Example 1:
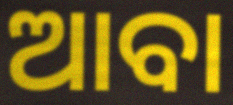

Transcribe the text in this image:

ଆବା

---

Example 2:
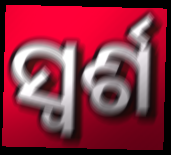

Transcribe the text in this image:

ସ୍ୱର୍ଶ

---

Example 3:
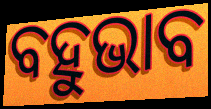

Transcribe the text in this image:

ବହୁଭାବ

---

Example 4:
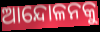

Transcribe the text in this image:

ଆନ୍ଦୋଳନକୁ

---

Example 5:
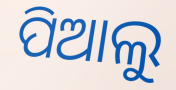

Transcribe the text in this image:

ପିଆଲୁ